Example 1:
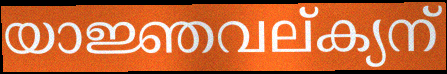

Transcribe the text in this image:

യാജ്ഞവല്ക്യന്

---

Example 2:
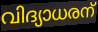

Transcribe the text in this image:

വിദ്യാധരന്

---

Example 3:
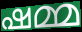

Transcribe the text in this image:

ഷമ്മ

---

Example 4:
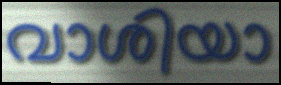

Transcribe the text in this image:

വാശിയാ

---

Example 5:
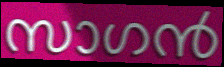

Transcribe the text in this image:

സാഗൻ